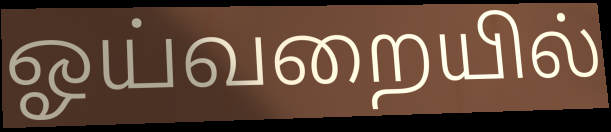
ஓய்வறையில்